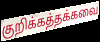
குறிக்கத்தக்கவை